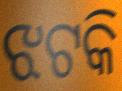
ଝଟକି